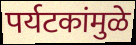
पर्यटकांमुळे